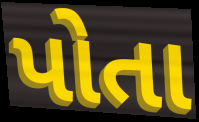
પોતા